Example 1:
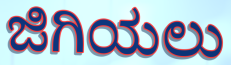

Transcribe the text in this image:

ಜಿಗಿಯಲು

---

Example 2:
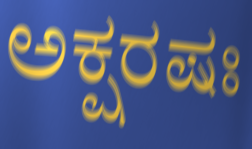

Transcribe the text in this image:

ಅಕ್ಷರಷಃ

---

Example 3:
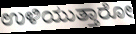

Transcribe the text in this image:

ಉಳಿಯುತ್ತಾರೋ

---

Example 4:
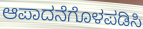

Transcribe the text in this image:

ಆಪಾದನೆಗೊಳಪಡಿಸಿ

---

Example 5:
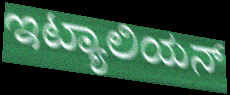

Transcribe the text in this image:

ಇಟ್ಯಾಲಿಯನ್